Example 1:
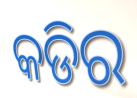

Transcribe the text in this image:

କଡିର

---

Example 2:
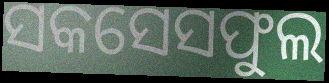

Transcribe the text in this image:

ସକସେସଫୁଲ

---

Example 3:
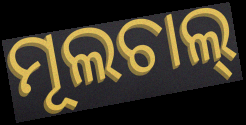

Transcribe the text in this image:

ମୂଲଚାଲ୍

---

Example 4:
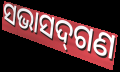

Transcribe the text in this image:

ସଭାସଦ୍‍ଗଣ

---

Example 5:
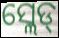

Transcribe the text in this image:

ସ୍ଲେଡ୍